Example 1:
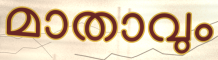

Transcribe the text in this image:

മാതാവും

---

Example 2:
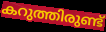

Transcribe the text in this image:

കറുത്തിരുണ്ട്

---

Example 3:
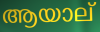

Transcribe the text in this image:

ആയാല്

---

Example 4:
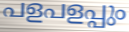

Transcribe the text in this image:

പളപളപ്പും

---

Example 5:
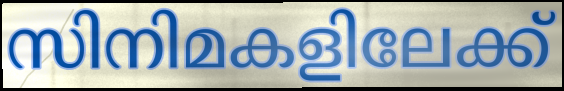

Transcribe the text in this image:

സിനിമകളിലേക്ക്